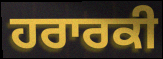
ਹਰਾਰਕੀ